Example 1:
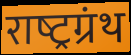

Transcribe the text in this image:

राष्ट्रग्रंथ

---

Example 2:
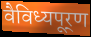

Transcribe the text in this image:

वैविध्यपूर्ण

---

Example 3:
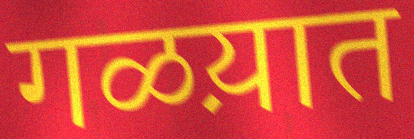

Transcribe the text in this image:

गळय़ात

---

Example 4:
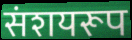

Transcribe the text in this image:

संशयरूप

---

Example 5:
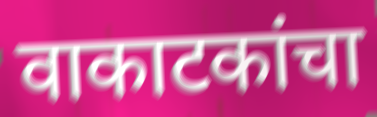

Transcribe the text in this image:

वाकाटकांचा